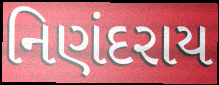
નિણંદરાય